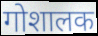
गोशालक